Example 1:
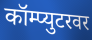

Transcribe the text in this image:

कॉम्प्युटरवर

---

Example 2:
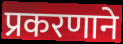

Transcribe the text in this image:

प्रकरणाने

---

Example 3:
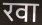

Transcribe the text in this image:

रवा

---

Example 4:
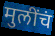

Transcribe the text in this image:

मुलींचं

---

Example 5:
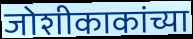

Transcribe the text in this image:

जोशीकाकांच्या